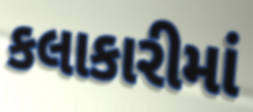
કલાકારીમાં